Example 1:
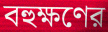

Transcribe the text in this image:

বহুক্ষণের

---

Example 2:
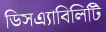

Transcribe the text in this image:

ডিসএ্যাবিলিটি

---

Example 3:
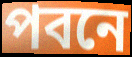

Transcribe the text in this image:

পবনে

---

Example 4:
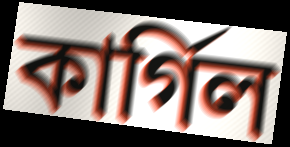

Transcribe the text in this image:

কার্গিল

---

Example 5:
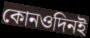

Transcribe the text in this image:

কোনওদিনই